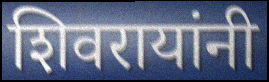
शिवरायांनी